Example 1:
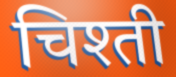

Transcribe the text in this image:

चिश्ती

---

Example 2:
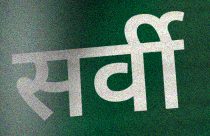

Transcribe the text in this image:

सर्वी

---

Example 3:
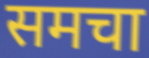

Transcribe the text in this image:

समचा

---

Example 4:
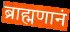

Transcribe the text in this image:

ब्राह्मणानं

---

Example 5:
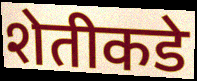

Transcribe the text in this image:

शेतीकडे